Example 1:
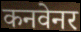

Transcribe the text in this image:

कनवेनर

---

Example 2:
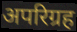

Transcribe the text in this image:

अपरिग्रह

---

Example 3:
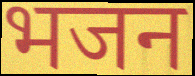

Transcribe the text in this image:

भजन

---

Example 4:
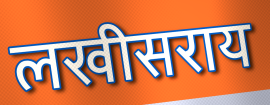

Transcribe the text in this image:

लखीसराय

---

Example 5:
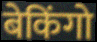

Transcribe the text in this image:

बेकिंगो